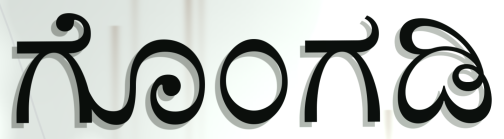
ಗೊಂಗಡಿ